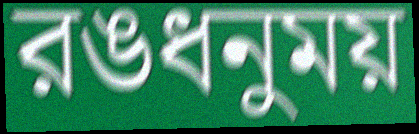
রঙধনুময়